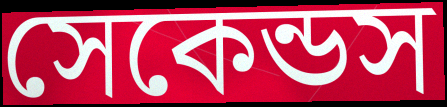
সেকেন্ডস